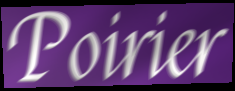
Poirier